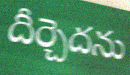
దీర్చెదను